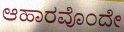
ಆಹಾರವೊಂದೇ